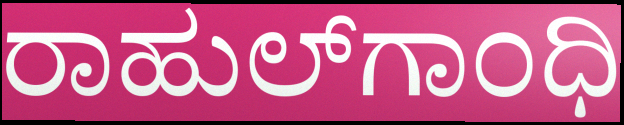
ರಾಹುಲ್‌ಗಾಂಧಿ